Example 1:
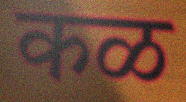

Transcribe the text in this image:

कळ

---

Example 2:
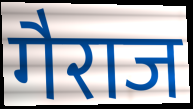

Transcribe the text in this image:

गैराज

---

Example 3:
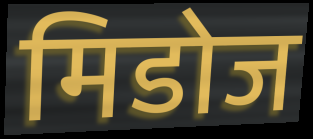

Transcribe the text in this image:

मिडोज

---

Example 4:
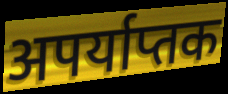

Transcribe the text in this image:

अपर्याप्तक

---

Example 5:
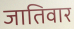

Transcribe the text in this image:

जातिवार